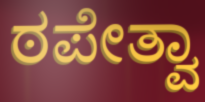
ಠಪೇತ್ವಾ